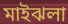
মাইঝলা